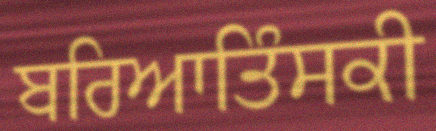
ਬਰਿਆਤਿੰਸਕੀ